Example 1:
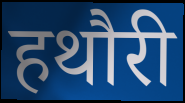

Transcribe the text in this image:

हथौरी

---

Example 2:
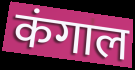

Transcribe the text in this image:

कंगाल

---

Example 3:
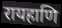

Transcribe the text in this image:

रायहाणि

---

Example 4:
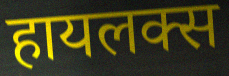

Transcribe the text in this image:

हायलक्स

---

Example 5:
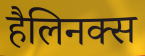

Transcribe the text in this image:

हैलिनक्स